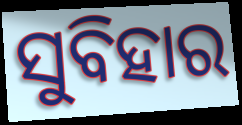
ସୁବିହାର